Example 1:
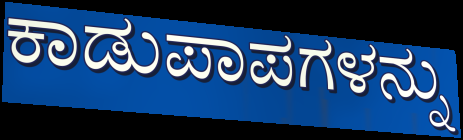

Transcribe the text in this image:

ಕಾಡುಪಾಪಗಳನ್ನು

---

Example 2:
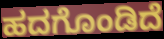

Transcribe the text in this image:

ಹದಗೊಂಡಿದೆ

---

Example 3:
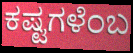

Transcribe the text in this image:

ಕಷ್ಟಗಳೆಂಬ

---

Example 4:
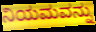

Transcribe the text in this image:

ನಿಯಮವನ್ನು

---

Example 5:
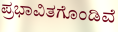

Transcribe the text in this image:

ಪ್ರಭಾವಿತಗೊಂಡಿವೆ